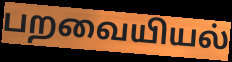
பறவையியல்